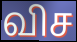
விச